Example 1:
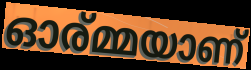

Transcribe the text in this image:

ഓര്മ്മയാണ്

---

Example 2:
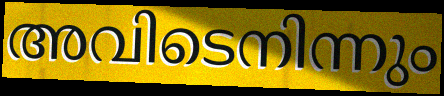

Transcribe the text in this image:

അവിടെനിന്നും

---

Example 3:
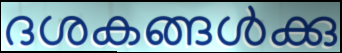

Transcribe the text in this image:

ദശകങ്ങൾക്കു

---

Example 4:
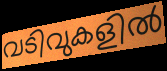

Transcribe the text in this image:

വടിവുകളിൽ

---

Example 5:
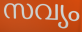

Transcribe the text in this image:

സവ്യം